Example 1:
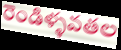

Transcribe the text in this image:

రెండిళ్ళవతల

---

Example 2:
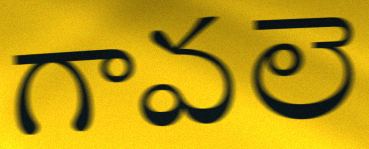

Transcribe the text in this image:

గావలె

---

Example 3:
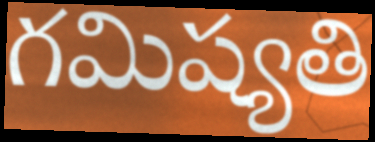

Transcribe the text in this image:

గమిష్యతి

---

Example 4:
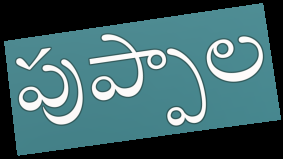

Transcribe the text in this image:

పుప్పాల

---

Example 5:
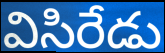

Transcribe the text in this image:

విసిరేడు